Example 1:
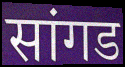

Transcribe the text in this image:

सांगड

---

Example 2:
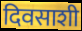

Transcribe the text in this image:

दिवसाशी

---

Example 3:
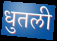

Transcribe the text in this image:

धुतली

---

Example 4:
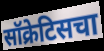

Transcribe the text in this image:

सॉक्रेटिसचा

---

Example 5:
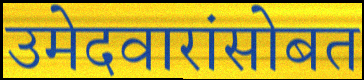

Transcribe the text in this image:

उमेदवारांसोबत